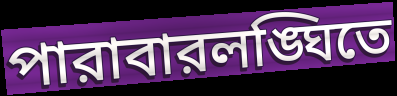
পারাবারলঙ্ঘিতে